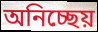
অনিচ্ছেয়